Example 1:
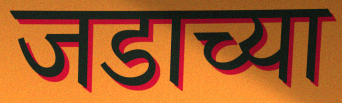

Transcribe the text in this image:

जडाच्या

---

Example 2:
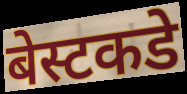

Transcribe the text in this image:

बेस्टकडे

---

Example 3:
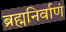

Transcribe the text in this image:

ब्रह्मनिर्वाणं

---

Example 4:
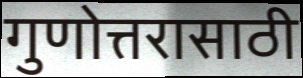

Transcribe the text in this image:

गुणोत्तरासाठी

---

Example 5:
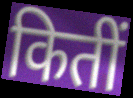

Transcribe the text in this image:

कितीं